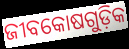
ଜୀବକୋଷଗୁଡ଼ିକ